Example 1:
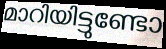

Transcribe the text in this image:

മാറിയിട്ടുണ്ടോ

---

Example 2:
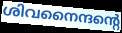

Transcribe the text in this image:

ശിവനൈന്ദന്റെ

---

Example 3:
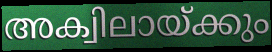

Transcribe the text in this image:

അക്വിലായ്ക്കും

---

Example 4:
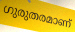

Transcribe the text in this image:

ഗുരുതരമാണ്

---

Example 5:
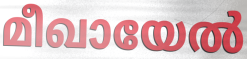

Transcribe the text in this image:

മീഖായേൽ